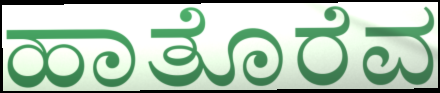
ಹಾತೊರೆವ